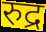
रुद्र